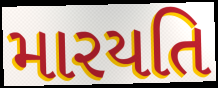
મારયતિ